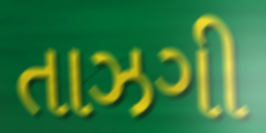
તાઝગી